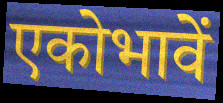
एकोभावें